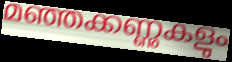
മഞ്ഞക്കണ്ണുകളും